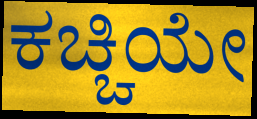
ಕಚ್ಚಿಯೇ